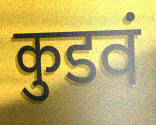
कुडवं